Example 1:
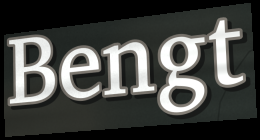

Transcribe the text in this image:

Bengt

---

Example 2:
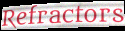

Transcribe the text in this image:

Refractors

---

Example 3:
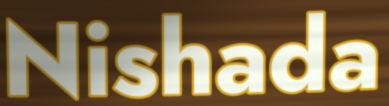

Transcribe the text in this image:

Nishada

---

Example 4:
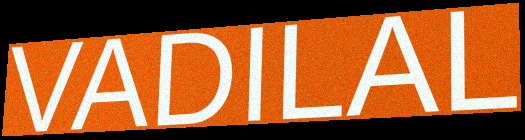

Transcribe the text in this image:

VADILAL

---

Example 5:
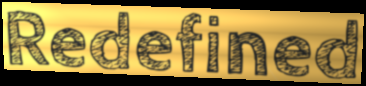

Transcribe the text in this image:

Redefined